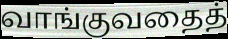
வாங்குவதைத்